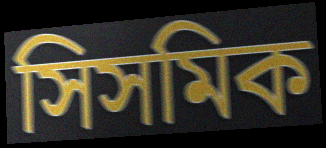
সিসমিক